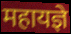
महायज्ञे